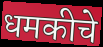
धमकीचे